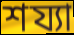
শয্যা